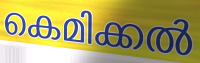
കെമിക്കൽ